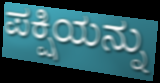
ಪಕ್ಷಿಯನ್ನು